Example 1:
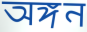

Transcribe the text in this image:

অঙ্গন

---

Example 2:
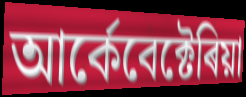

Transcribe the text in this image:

আৰ্কেবেক্টেৰিয়া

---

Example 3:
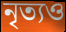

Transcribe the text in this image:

নৃত্যও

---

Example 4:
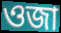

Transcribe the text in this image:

ওজা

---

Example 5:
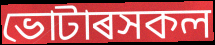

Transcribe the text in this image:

ভোটাৰসকল